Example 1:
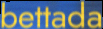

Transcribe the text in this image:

bettada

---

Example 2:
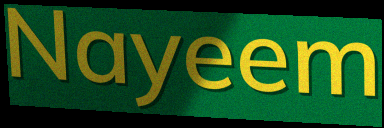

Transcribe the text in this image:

Nayeem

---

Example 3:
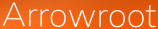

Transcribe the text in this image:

Arrowroot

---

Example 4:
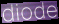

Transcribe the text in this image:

diode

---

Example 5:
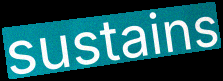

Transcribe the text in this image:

sustains